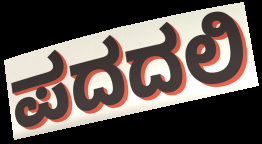
ಪದದಲಿ